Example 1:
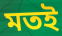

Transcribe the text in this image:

মতই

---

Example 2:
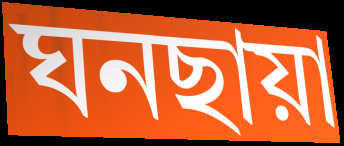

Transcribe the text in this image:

ঘনছায়া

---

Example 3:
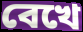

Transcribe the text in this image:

বেখে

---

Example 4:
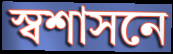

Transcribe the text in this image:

স্বশাসনে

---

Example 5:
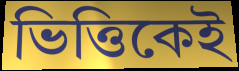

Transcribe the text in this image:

ভিত্তিকেই